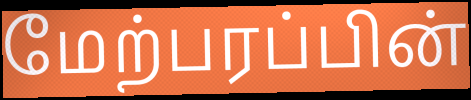
மேற்பரப்பின்